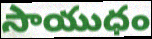
సాయుధం